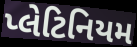
પ્લેટિનિયમ